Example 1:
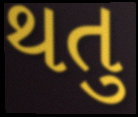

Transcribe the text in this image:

થતુ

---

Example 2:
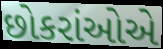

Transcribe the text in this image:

છોકરાંઓએ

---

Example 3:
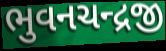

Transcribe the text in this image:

ભુવનચન્દ્રજી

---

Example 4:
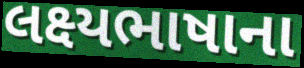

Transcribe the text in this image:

લક્ષ્યભાષાના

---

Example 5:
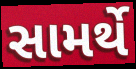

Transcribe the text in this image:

સામર્થે